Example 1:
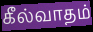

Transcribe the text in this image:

கீல்வாதம்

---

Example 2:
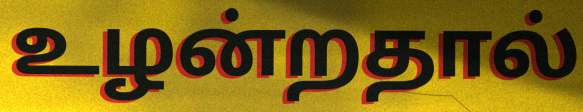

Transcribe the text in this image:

உழன்றதால்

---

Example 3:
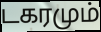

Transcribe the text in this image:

டகரமும்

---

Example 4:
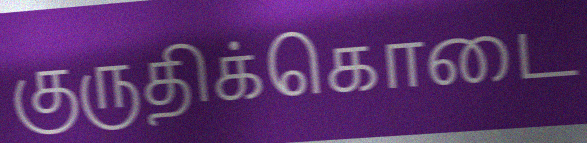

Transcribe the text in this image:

குருதிக்கொடை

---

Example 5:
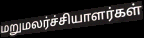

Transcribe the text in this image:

மறுமலர்ச்சியாளர்கள்